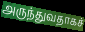
அருந்துவதாகச்